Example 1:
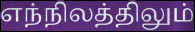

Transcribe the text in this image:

எந்நிலத்திலும்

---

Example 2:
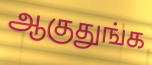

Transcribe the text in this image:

ஆகுதுங்க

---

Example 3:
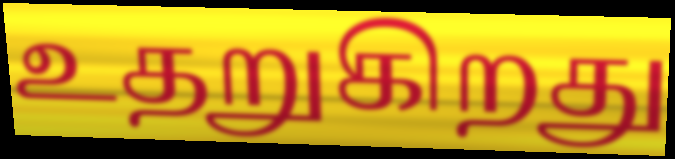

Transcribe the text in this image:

உதறுகிறது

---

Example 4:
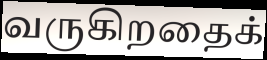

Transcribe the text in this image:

வருகிறதைக்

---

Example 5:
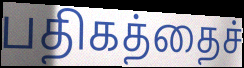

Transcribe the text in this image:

பதிகத்தைச்